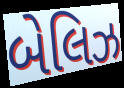
બેલિઝ